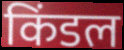
किंडल